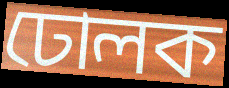
ঢোলক